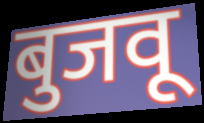
बुजवू